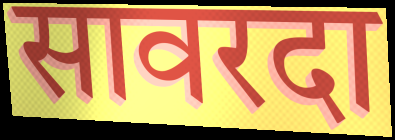
सावरदा